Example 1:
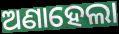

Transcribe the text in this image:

ଅଣାହେଲା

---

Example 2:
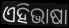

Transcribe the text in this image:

ଏହିଭାଷା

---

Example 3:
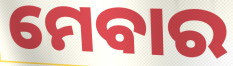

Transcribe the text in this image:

ମେବାର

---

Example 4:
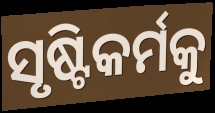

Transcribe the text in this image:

ସୃଷ୍ଟିକର୍ମକୁ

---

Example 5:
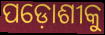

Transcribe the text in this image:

ପଡ଼ୋଶୀକୁ